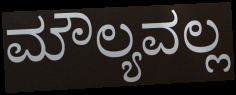
ಮೌಲ್ಯವಲ್ಲ